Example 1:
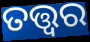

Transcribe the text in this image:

ତତ୍ତ୍ବର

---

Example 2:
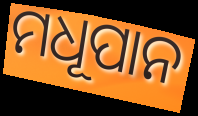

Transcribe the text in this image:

ମଧୂପାନ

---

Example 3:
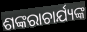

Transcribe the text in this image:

ଶଙ୍କରାଚାର୍ଯ୍ୟଙ୍କ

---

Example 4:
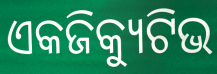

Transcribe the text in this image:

ଏକଜିକ୍ୟୁଟିଭ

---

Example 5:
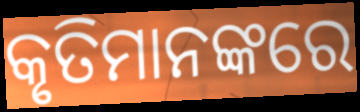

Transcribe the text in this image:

କୃତିମାନଙ୍କରେ